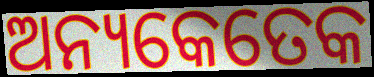
ଅନ୍ୟକେତେକ